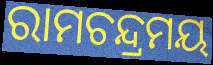
ରାମଚନ୍ଦ୍ରମୟ